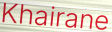
Khairane